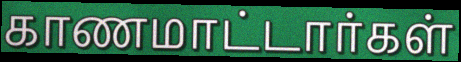
காணமாட்டார்கள்